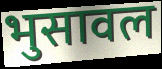
भुसावल